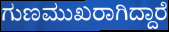
ಗುಣಮುಖರಾಗಿದ್ದಾರೆ